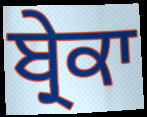
ਬ੍ਰੇਕਾ